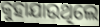
କୁହାଯାଉଥିଲେ